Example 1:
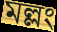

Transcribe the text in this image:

মল্লং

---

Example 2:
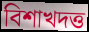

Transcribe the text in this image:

বিশাখদত্ত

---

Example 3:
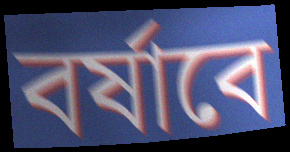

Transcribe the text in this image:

বর্ষাবে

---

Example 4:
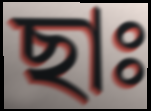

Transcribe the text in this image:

ছাঃ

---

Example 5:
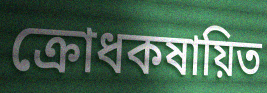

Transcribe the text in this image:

ক্রোধকষায়িত